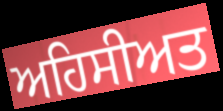
ਅਹਿਸੀਅਤ